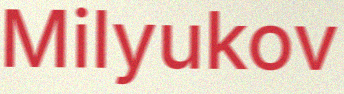
Milyukov